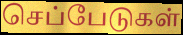
செப்பேடுகள்